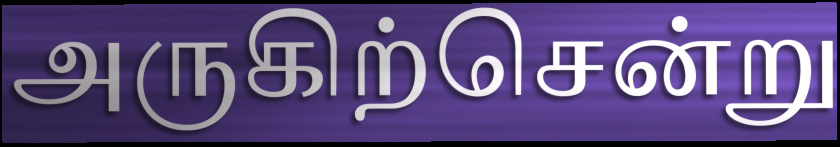
அருகிற்சென்று